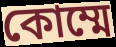
কোম্মে